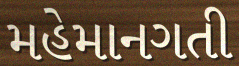
મહેમાનગતી